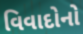
વિવાદોનો